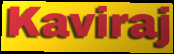
Kaviraj